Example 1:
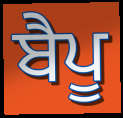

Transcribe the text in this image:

ਬੈਪੂ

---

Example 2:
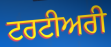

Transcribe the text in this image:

ਟਰਟੀਅਰੀ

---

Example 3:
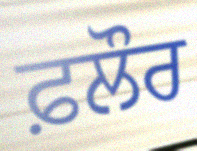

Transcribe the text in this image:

ਫ਼ਲੌਰ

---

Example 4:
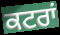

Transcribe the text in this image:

ਕਟਰਾਂ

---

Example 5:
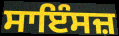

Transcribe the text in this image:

ਸਾਇੰਸਜ਼